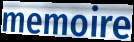
memoire